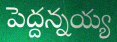
పెద్దన్నయ్య